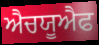
ਐਚਯੂਐਫ